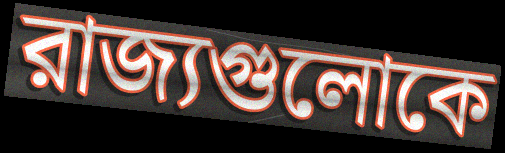
রাজ্যগুলোকে